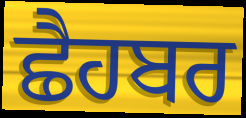
ਛੈਹਬਰ